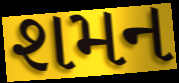
શમન